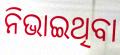
ନିଭାଇଥିବା